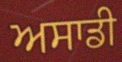
ਅਸਾਡੀ